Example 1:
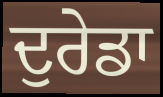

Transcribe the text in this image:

ਦੁਰੇਡਾ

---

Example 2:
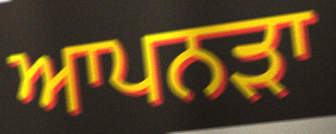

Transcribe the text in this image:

ਆਪਨੜਾ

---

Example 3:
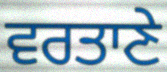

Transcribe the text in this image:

ਵਰਤਾਣੇ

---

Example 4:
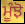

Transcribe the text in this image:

ਮੂੰਝੋ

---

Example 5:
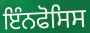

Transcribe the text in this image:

ਇੰਨਫੋਸਿਸ